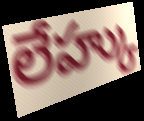
లేహ్కు